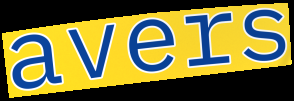
avers